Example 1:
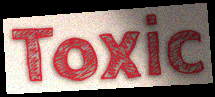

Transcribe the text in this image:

Toxic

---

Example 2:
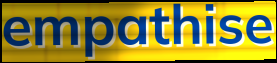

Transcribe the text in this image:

empathise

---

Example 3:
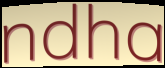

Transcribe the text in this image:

ndha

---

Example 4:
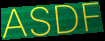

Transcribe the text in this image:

ASDF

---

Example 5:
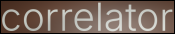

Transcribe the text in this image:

correlator